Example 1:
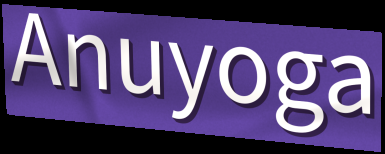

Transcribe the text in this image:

Anuyoga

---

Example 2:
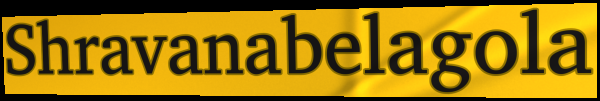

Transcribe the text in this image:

Shravanabelagola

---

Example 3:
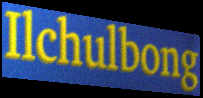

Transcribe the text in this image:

Ilchulbong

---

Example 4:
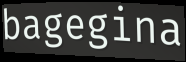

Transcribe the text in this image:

bagegina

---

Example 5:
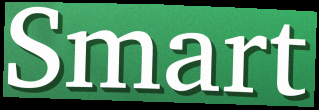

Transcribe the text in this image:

Smart